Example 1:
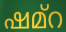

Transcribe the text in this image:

ഷമ്റ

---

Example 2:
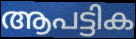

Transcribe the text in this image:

ആപട്ടിക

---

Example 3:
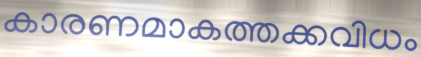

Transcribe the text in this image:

കാരണമാകത്തക്കവിധം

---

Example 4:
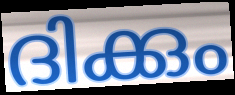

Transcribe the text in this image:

ദിക്കും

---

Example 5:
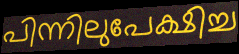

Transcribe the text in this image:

പിന്നിലുപേക്ഷിച്ച